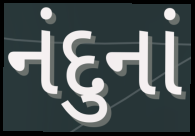
નંદુનાં